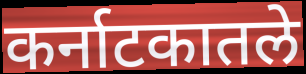
कर्नाटकातले